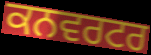
ਕਨਵਰਟਰ